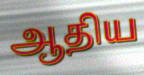
ஆதிய